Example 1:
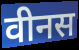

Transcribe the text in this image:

वीनस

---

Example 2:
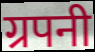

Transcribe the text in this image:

ग्रपनी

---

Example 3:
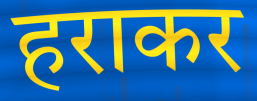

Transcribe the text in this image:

हराकर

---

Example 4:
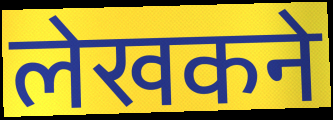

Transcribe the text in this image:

लेखकने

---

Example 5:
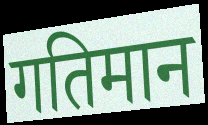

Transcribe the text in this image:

गतिमान